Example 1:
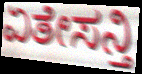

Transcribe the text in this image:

ಏತೇಸನ್ತಿ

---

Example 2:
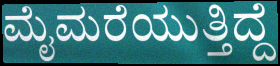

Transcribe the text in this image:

ಮೈಮರೆಯುತ್ತಿದ್ದೆ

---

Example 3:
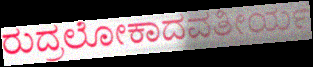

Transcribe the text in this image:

ರುದ್ರಲೋಕಾದವತೀರ್ಯ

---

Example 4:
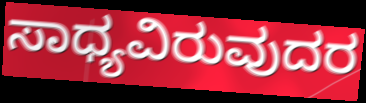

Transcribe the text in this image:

ಸಾಧ್ಯವಿರುವುದರ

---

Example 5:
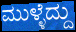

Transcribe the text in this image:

ಮುಳ್ಳೆದ್ದು